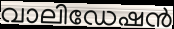
വാലിഡേഷൻ